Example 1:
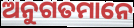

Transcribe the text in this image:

ଅନୁଗତମାନେ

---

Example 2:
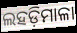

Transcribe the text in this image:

ଲହଡ଼ିମାଳା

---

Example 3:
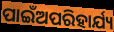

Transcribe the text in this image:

ପାଇଁଅପରିହାର୍ଯ୍ୟ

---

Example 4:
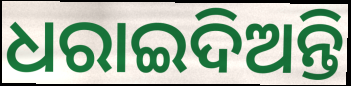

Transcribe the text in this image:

ଧରାଇଦିଅନ୍ତି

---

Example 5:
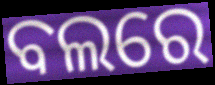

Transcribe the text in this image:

ବଲରେ